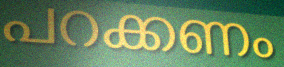
പറക്കണം